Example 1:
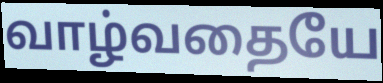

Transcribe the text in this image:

வாழ்வதையே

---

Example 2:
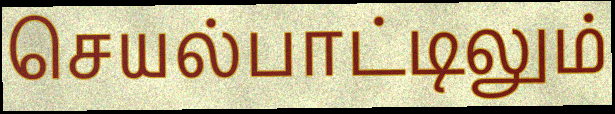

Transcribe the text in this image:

செயல்பாட்டிலும்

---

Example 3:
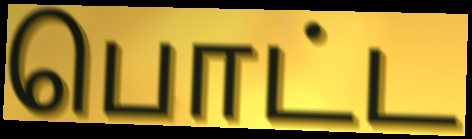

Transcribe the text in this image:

பொட்ட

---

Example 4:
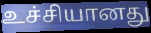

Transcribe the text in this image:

உச்சியானது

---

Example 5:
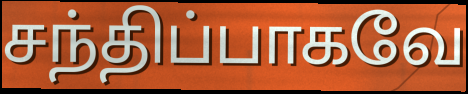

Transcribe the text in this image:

சந்திப்பாகவே